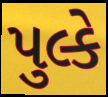
પુલ્કે